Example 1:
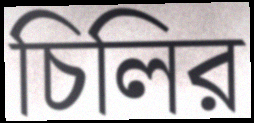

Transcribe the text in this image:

চিলির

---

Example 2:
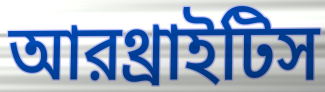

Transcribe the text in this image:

আরথ্রাইটিস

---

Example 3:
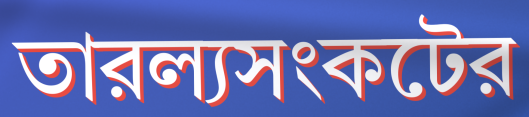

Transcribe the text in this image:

তারল্যসংকটের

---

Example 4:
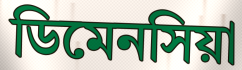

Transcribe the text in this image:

ডিমেনসিয়া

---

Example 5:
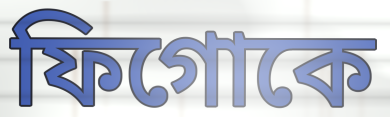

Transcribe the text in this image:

ফিগোকে